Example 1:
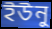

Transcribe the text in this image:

ইউনু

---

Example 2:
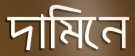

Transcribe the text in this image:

দামিনে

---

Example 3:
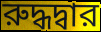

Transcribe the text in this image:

রুদ্ধদ্বার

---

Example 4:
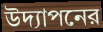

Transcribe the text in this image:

উদ্যাপনের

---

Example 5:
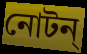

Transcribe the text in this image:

নোটন্